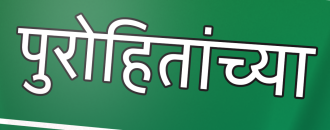
पुरोहितांच्या